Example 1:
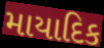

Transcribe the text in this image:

માયાદિક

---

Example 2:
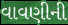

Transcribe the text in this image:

વાવણીની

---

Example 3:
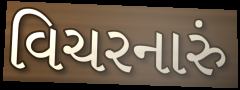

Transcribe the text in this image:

વિચરનારું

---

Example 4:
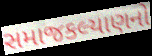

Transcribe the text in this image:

સમાજકલ્યાણનો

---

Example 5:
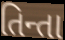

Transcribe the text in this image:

તિન્તા